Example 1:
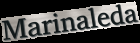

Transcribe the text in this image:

Marinaleda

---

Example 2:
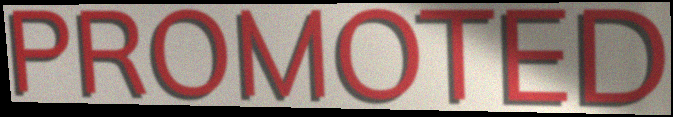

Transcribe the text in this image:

PROMOTED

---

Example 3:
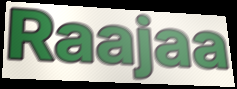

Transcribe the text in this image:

Raajaa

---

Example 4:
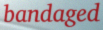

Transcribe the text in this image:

bandaged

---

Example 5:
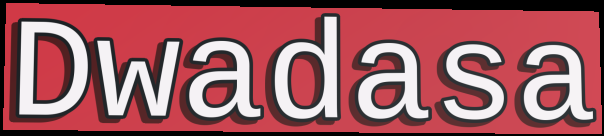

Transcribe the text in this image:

Dwadasa